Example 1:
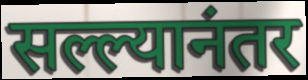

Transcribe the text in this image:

सल्ल्यानंतर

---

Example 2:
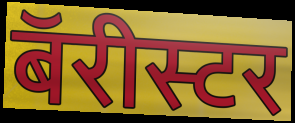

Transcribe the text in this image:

बॅरीस्टर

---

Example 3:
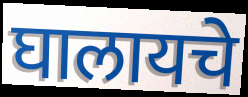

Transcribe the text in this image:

घालायचे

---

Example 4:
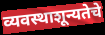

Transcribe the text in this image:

व्यवस्थाशून्यतेचे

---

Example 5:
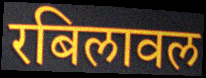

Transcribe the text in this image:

रबिलावल